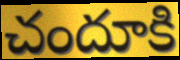
చందూకి